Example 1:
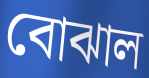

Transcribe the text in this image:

বোঝাল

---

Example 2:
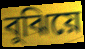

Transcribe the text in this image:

বুঝিয়ে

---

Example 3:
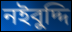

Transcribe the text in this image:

নইবুদ্দি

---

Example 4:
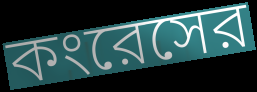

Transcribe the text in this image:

কংরেসের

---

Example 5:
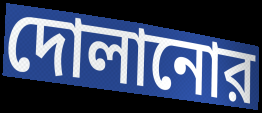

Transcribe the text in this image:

দোলানোর